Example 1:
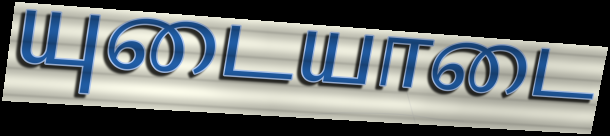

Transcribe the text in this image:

யுடையாடை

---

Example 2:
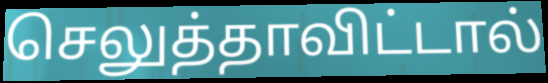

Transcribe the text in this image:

செலுத்தாவிட்டால்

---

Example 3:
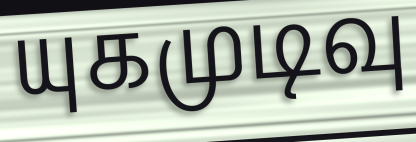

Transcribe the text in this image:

யுகமுடிவு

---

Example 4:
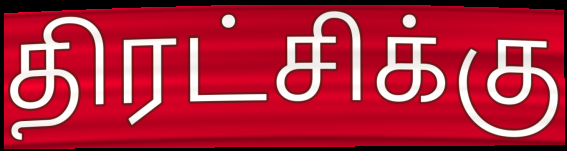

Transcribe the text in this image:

திரட்சிக்கு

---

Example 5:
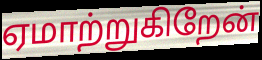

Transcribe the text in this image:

ஏமாற்றுகிறேன்